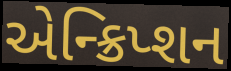
એન્ક્રિપ્શન